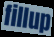
fillup